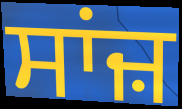
ਸਾਂਜ਼